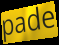
pade